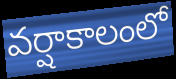
వర్షాకాలంలో